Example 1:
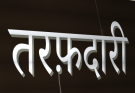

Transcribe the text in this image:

तरफ़दारी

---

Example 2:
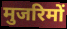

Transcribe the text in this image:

मुजरिमों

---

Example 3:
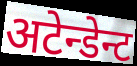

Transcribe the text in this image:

अटेन्डेन्ट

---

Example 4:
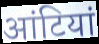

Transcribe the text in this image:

आंटियां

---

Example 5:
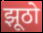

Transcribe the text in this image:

झूठो